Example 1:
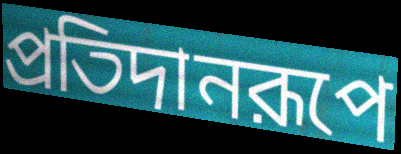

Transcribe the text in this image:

প্রতিদানরূপে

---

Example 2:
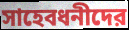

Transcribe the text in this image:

সাহেবধনীদের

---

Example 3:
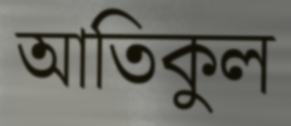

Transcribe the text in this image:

আতিকুল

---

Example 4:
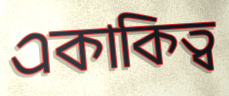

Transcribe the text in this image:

একাকিত্ব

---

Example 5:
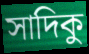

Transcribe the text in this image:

সাদিকু